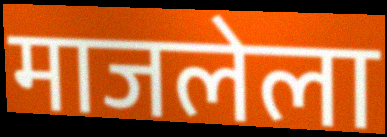
माजलेला